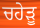
ਚਹੇੜੂ